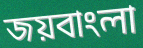
জয়বাংলা